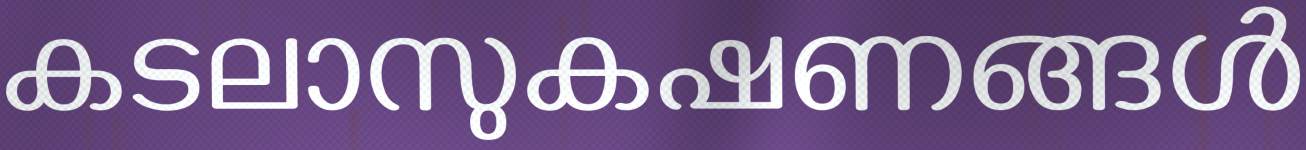
കടലാസുകഷണങ്ങൾ